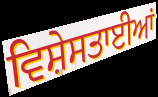
ਵਿਸ਼ੇਸਤਾਈਆਂ